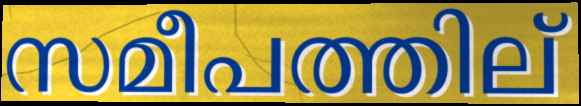
സമീപത്തില്